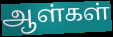
ஆள்கள்